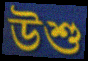
উশু